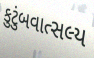
કુટુંબવાત્સલ્ય